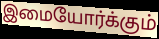
இமையோர்க்கும்